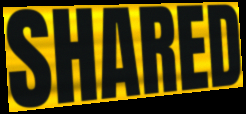
SHARED